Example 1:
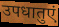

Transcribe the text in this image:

उपधातुएं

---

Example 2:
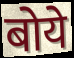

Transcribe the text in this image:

बोये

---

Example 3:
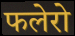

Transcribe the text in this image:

फलेरो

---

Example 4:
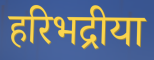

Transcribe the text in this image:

हरिभद्रीया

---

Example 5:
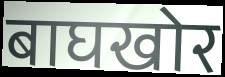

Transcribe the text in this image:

बाघखोर